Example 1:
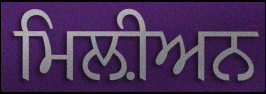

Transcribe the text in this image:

ਮਿਲ਼ੀਅਨ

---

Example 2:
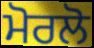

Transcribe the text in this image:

ਮੋਰਲੋ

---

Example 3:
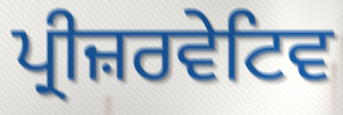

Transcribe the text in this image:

ਪ੍ਰੀਜ਼ਰਵੇਟਿਵ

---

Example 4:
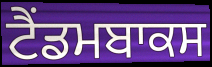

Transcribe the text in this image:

ਟੈਂਡਮਬਾਕਸ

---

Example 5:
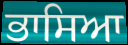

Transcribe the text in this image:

ਭਾਸਿਆ